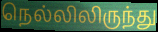
நெல்லிலிருந்து